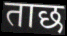
ताछ